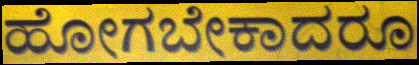
ಹೋಗಬೇಕಾದರೂ